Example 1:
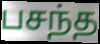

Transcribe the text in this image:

பசந்த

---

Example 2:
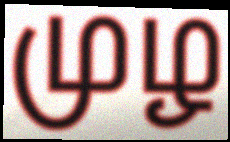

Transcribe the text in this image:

முழ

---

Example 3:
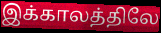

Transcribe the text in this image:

இக்காலத்திலே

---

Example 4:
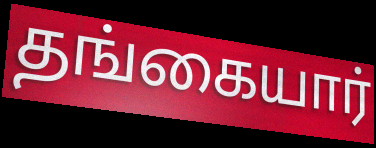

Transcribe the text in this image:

தங்கையார்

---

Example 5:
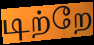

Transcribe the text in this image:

டிற்றே